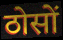
ठोसों